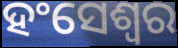
ହଂସେଶ୍ୱର